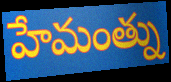
హేమంత్ను